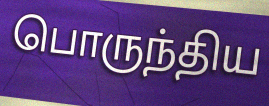
பொருந்திய